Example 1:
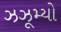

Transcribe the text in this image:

ઝઝૂમ્યો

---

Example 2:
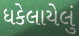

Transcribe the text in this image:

ધકેલાયેલું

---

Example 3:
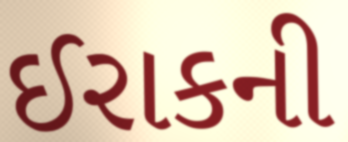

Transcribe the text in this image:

ઈરાકની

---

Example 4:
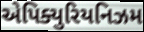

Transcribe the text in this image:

એપિક્યુરિયનિઝમ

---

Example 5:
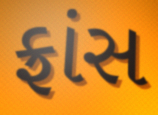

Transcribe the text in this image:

ફ્રાંસ